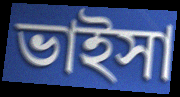
ভাইসা